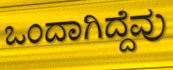
ಒಂದಾಗಿದ್ದೆವು